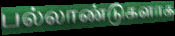
பல்லாண்டுகளாக